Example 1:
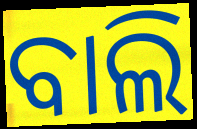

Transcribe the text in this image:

ବାଲି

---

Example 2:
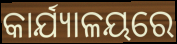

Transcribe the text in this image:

କାର୍ଯ୍ୟାଳୟରେ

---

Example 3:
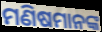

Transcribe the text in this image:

ମଣିଷମାନଙ୍କ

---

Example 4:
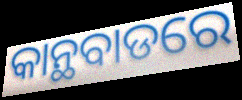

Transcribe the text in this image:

କାନ୍ଥବାଡରେ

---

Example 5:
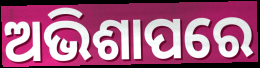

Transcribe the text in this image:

ଅଭିଶାପରେ